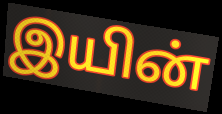
இயின்